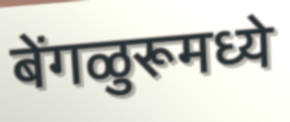
बेंगळुरूमध्ये